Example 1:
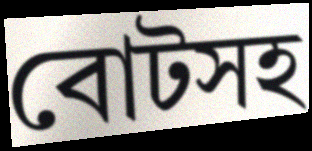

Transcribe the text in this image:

বোটসহ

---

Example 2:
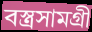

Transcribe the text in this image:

বস্ত্রসামগ্রী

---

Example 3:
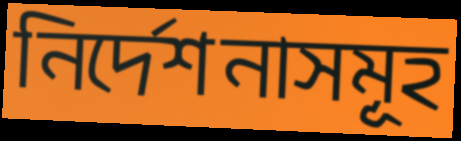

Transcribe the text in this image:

নির্দেশনাসমূহ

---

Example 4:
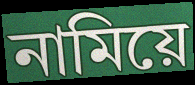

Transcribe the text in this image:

নামিয়ে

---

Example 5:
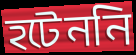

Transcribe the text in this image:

হটেননি